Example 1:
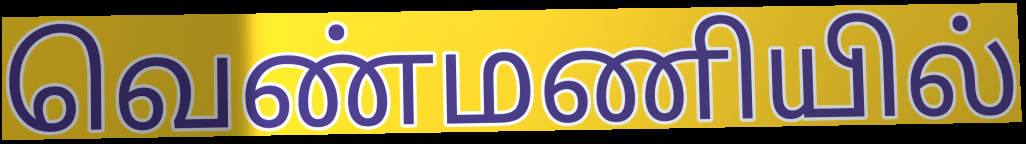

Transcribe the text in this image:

வெண்மணியில்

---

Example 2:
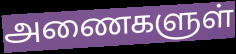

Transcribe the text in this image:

அணைகளுள்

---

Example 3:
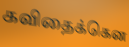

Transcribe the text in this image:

கவிதைக்கென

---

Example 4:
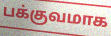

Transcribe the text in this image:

பக்குவமாக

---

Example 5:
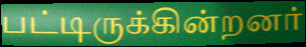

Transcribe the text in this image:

பட்டிருக்கின்றனர்